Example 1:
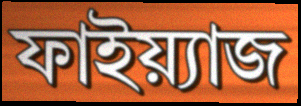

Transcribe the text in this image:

ফাইয়্যাজ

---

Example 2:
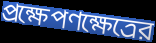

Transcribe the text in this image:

প্রক্ষেপণক্ষেত্রের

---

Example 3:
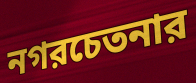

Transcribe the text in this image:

নগরচেতনার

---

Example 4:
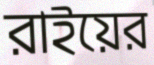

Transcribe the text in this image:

রাইয়ের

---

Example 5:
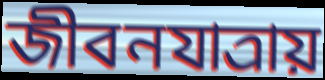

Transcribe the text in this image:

জীবনযাত্রায়